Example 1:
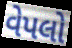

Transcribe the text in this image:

વેપલો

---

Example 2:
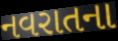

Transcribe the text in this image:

નવરાતના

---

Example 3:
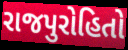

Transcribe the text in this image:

રાજપુરોહિતો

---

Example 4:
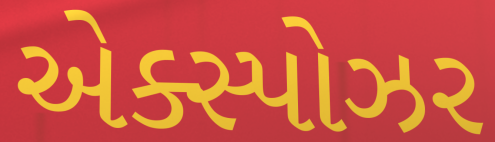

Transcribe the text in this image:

એક્સ્પોઝર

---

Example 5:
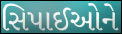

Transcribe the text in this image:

સિપાઈઓને